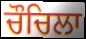
ਚੌਚਿਲਾ